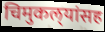
चिमुकल्यांसह